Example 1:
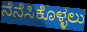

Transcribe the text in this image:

ನೆನೆಸಿಕೊಳ್ಳಲು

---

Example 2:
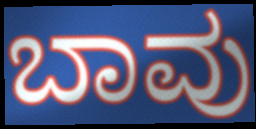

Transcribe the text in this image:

ಬಾವು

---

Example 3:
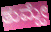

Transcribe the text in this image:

ತುಮ್ಹೇ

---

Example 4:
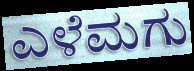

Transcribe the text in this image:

ಎಳೆಮಗು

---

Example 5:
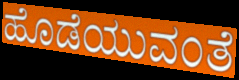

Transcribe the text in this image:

ಹೊಡೆಯುವಂತೆ